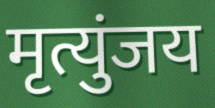
मृत्युंजय